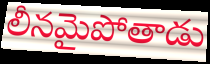
లీనమైపోతాడు